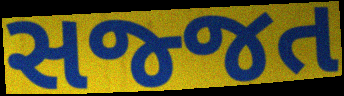
સજ્જત